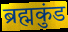
ब्रह्मकुंड